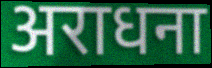
अराधना